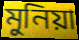
মুনিয়া